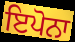
ਇਪੋਨਾ